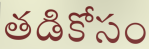
తడికోసం